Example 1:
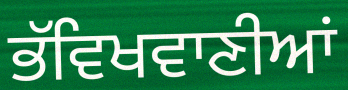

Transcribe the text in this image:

ਭੱਵਿਖਵਾਣੀਆਂ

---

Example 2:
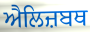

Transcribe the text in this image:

ਐਲਿਜ਼ਬਥ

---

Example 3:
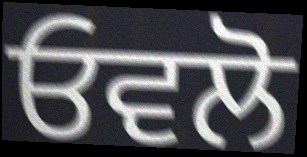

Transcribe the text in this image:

ਓਵਲੋ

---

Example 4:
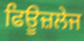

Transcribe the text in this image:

ਫਿਊਜ਼ਲੇਜ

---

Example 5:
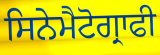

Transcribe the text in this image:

ਸਿਨੇਮੈਟੋਗ੍ਰਾਫੀ